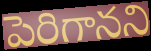
పెరిగానని